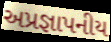
અપ્રજ્ઞાપનીય